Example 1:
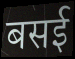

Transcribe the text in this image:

बसई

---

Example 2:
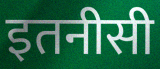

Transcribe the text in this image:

इतनीसी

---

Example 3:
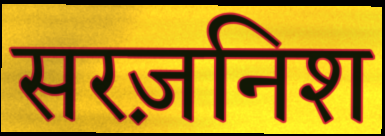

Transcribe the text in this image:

सरज़निश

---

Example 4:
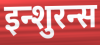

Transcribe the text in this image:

इन्शुरन्स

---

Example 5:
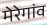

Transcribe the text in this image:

मेरेगांव